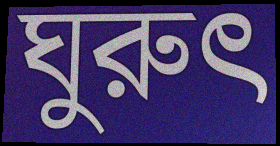
ঘুরুৎ